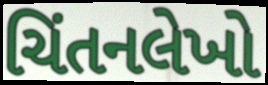
ચિંતનલેખો